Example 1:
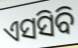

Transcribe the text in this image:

ଏସସିବି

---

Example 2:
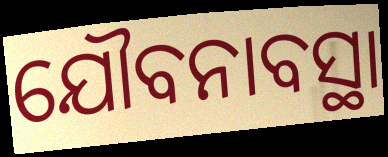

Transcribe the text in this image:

ଯୌବନାବସ୍ଥା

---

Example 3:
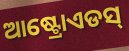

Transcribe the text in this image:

ଆଷ୍ଟ୍ରୋଏଡସ୍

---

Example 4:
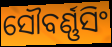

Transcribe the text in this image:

ସୌବର୍ଣ୍ଣସିଂ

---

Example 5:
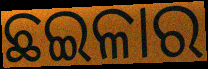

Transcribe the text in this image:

ଛଇଳାର